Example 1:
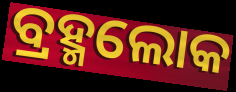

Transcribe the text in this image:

ବ୍ରହ୍ମଲୋକ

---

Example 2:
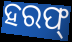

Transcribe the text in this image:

ହରଫ୍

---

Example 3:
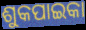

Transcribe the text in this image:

ଶୁକପାଇକା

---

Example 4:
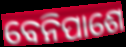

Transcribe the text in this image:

ବେନିପାଶେ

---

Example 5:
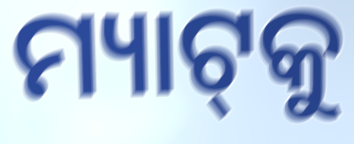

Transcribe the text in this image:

ମ୍ୟାଟ୍‌କୁ